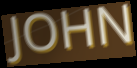
JOHN